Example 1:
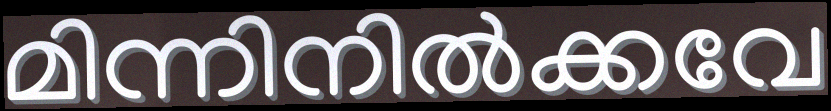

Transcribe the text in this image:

മിന്നിനിൽക്കവേ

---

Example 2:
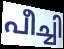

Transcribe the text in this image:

പീച്ചി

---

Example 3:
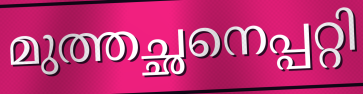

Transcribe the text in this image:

മുത്തച്ഛനെപ്പറ്റി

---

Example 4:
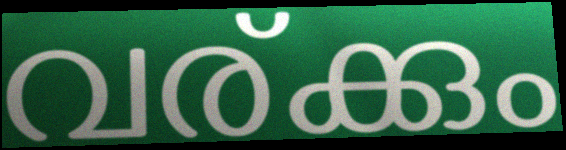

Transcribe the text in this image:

വര്ക്കും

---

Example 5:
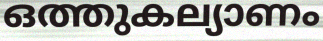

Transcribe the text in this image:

ഒത്തുകല്യാണം